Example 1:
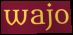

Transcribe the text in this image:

wajo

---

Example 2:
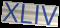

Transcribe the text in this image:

XLIV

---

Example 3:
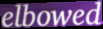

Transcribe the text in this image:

elbowed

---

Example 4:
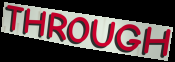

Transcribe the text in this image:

THROUGH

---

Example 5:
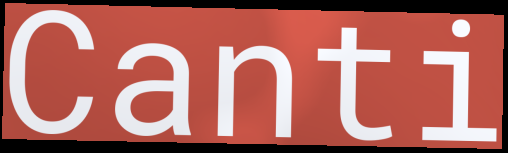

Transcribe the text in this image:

Canti